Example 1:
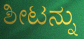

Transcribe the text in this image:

ಶೀಟನ್ನು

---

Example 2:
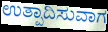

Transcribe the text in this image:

ಉತ್ಪಾದಿಸುವಾಗ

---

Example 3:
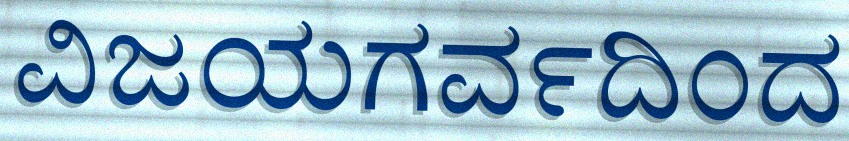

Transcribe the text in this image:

ವಿಜಯಗರ್ವದಿಂದ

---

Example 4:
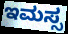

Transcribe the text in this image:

ಇಮಸ್ಸ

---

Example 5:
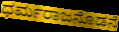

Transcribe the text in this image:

ಧರ್ಮರಾಜನೊಡನೆ